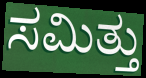
ಸಮಿತ್ತು